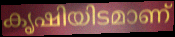
കൃഷിയിടമാണ്